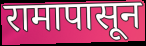
रामापासून